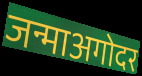
जन्माअगोदर